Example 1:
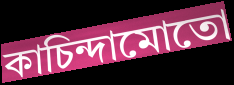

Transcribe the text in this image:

কাচিন্দামোতো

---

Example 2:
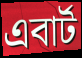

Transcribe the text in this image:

এবার্ট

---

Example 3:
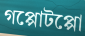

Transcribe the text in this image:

গপ্পোটপ্পো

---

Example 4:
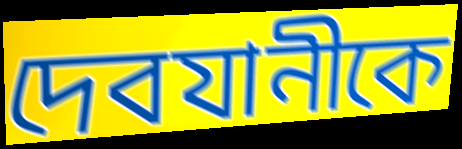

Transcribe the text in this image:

দেবযানীকে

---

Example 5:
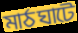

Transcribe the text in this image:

মাঠঘাটে